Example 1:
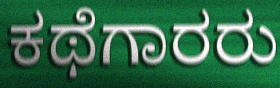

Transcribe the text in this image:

ಕಥೆಗಾರರು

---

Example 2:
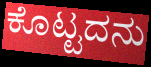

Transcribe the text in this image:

ಕೊಟ್ಟದನು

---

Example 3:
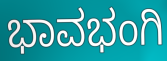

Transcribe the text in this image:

ಭಾವಭಂಗಿ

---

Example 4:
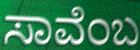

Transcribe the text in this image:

ಸಾವೆಂಬ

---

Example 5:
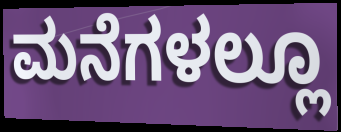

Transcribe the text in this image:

ಮನೆಗಳಲ್ಲೂ